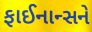
ફાઈનાન્સને